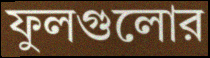
ফুলগুলোর